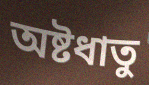
অষ্টধাতু